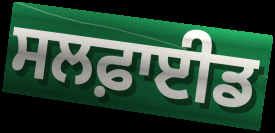
ਸਲਫ਼ਾਈਡ